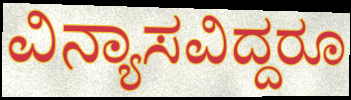
ವಿನ್ಯಾಸವಿದ್ದರೂ